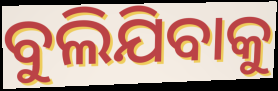
ବୁଲିଯିବାକୁ